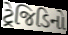
ટ્રેજિડિનો